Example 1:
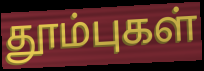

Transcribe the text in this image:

தூம்புகள்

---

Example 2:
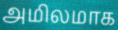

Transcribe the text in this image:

அமிலமாக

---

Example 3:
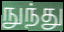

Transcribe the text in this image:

நுந்து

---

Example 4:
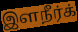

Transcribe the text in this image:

இளநீர்க்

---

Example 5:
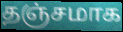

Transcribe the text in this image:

தஞ்சமாக